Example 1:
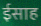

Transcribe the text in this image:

ईसाह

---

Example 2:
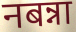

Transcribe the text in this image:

नबन्ना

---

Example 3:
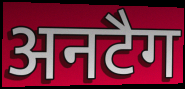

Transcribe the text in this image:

अनटैग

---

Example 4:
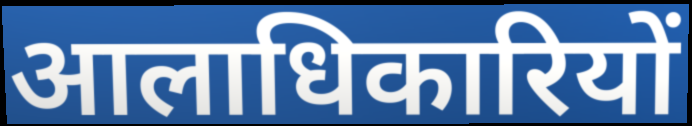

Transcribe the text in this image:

आलाधिकारियों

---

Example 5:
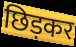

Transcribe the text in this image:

छिड़कर